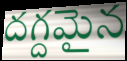
దగ్దమైన